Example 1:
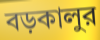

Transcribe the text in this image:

বড়কালুর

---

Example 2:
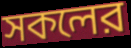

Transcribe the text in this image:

সকলের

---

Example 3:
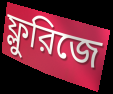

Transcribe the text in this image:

ফ্লুরিজে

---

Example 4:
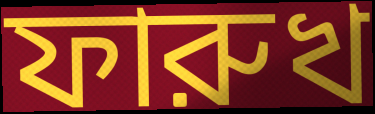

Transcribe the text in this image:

ফারুখ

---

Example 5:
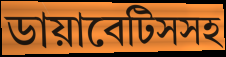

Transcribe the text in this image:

ডায়াবেটিসসহ